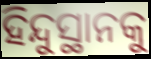
ହିନ୍ଦୁସ୍ଥାନକୁ